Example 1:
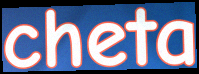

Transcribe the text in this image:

cheta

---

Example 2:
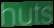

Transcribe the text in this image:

huts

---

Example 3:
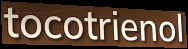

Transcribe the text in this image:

tocotrienol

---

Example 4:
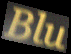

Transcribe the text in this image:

Blu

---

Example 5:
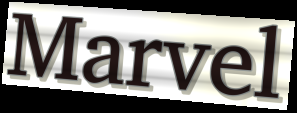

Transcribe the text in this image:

Marvel